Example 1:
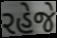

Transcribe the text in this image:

રહેજે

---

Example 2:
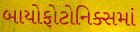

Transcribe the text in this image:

બાયોફોટોનિક્સમાં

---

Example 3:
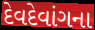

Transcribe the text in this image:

દેવદેવાંગના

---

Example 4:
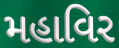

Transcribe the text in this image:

મહાવિર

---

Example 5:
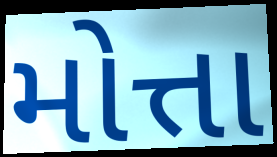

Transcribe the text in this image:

મોત્તા